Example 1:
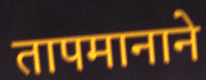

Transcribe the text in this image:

तापमानाने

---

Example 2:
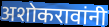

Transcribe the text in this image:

अशोकरावांनी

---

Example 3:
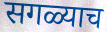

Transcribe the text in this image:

सगळ्याच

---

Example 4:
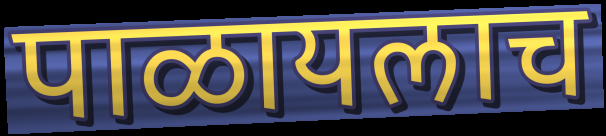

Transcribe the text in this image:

पाळायलाच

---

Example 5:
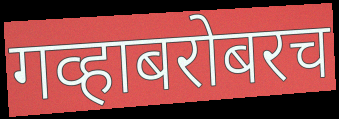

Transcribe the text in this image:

गव्हाबरोबरच